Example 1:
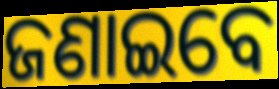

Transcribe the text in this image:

ଜଣାଇବେ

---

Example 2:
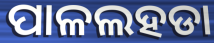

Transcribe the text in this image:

ପାଳଲହଡା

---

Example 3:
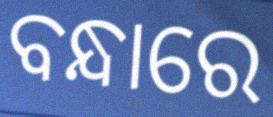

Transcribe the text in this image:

ବନ୍ଧାରେ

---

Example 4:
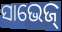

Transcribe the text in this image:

ସାଭେଜ୍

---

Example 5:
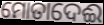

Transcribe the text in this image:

ମୋତାଦେଈ